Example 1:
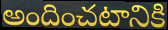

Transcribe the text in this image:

అందించటానికి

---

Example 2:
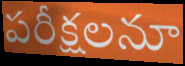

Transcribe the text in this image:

పరీక్షలనూ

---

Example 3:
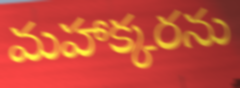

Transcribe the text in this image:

మహాక్కరను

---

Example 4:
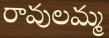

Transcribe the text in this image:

రావులమ్మ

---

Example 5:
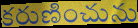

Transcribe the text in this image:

కరుణించును